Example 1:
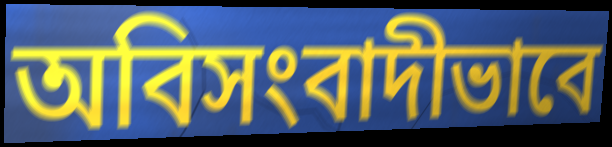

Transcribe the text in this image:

অবিসংবাদীভাবে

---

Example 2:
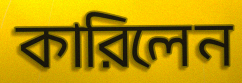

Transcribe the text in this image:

কারিলেন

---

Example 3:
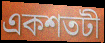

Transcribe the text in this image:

একশতটী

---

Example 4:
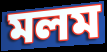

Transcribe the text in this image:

মলম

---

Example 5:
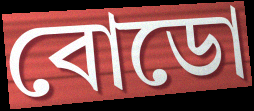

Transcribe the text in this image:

বোডো